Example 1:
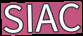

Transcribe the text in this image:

SIAC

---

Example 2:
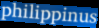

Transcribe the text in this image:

philippinus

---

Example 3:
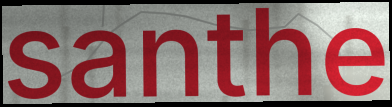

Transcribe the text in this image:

santhe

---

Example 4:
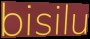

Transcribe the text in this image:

bisilu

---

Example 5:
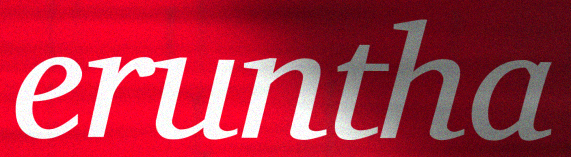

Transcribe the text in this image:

eruntha